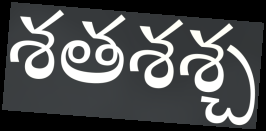
శతశశ్చ